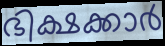
ഭിക്ഷക്കാർ